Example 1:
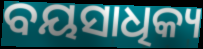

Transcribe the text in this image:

ବୟସାଧିକ୍ୟ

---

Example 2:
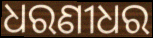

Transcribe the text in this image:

ଧରଣୀଧର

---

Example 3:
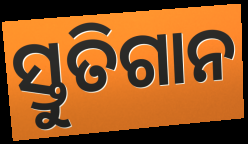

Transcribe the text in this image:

ସ୍ତୁତିଗାନ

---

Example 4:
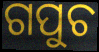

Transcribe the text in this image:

ଗପୁଚ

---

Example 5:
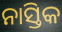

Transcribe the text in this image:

ନାସ୍ତିକ